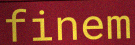
finem